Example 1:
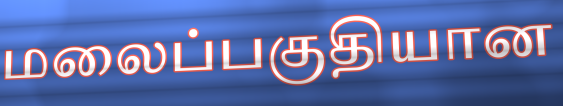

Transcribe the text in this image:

மலைப்பகுதியான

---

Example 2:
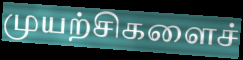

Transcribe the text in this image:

முயற்சிகளைச்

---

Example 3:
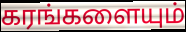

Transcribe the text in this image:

கரங்களையும்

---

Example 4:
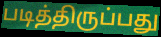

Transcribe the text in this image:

படித்திருப்பது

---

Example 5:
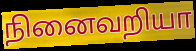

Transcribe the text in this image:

நினைவறியா